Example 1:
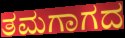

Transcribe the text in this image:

ತಮಗಾಗದ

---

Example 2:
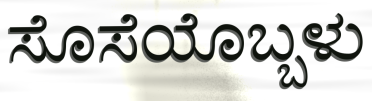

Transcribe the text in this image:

ಸೊಸೆಯೊಬ್ಬಳು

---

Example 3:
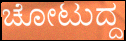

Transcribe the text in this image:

ಚೋಟುದ್ದ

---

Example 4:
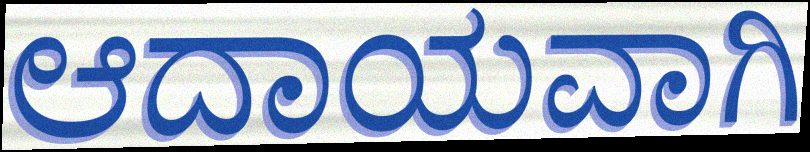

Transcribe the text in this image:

ಆದಾಯವಾಗಿ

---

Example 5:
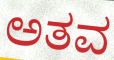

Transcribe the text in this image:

ಅತವ